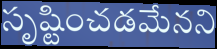
సృష్టించడమేనని